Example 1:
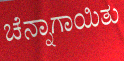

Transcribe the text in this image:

ಚೆನ್ನಾಗಾಯಿತು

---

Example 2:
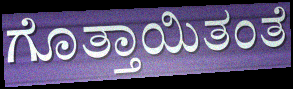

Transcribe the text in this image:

ಗೊತ್ತಾಯಿತಂತೆ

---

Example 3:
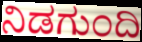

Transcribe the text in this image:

ನಿಡಗುಂದಿ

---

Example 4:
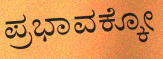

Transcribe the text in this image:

ಪ್ರಭಾವಕ್ಕೋ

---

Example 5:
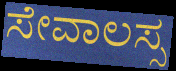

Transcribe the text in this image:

ಸೇವಾಲಸ್ಸ